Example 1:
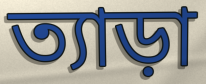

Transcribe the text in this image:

ত্যাড়া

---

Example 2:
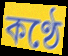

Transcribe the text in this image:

কণ্ঠে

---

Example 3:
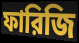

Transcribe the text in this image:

ফারিজি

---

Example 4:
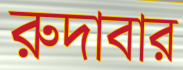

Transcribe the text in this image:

রুদাবার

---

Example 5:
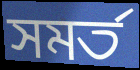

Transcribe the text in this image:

সমর্ত